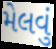
મેલવું